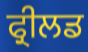
ਫ੍ਰੀਲਡ